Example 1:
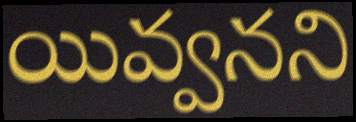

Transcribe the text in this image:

యివ్వనని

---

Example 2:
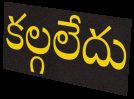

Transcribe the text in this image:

కల్గలేదు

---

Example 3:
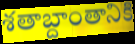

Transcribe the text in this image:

శతాబ్దాంతానికి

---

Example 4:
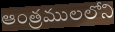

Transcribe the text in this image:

ఆంత్రములలోని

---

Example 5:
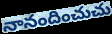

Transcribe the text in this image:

నానందించుచు